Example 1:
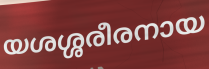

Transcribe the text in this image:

യശശ്ശരീരനായ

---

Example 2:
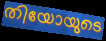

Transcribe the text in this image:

തിയോയുടെ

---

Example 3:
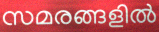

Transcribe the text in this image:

സമരങ്ങളിൽ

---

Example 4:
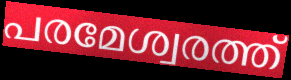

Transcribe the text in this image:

പരമേശ്വരത്ത്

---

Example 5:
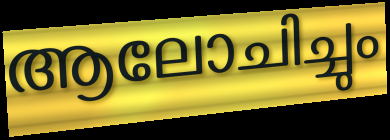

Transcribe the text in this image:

ആലോചിച്ചും